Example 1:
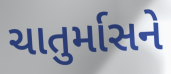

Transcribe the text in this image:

ચાતુર્માસને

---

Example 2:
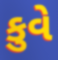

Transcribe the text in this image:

કુવે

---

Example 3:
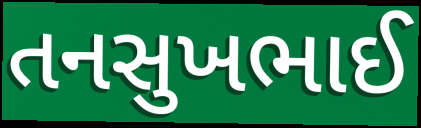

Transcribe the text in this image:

તનસુખભાઈ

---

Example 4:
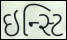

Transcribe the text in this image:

ઇન્સ્ટિ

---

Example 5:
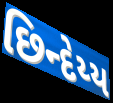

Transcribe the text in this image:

છિન્દેય્ય